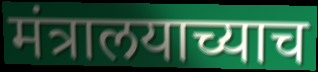
मंत्रालयाच्याच